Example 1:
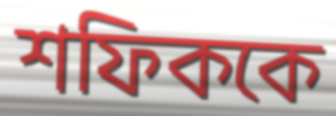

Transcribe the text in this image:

শফিককে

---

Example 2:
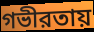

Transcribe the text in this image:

গভীরতায়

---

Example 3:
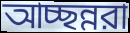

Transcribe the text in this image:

আচ্ছন্নরা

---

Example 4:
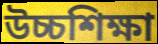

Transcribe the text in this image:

উচ্চশিক্ষা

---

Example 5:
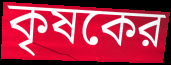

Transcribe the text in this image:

কৃষকের